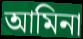
আমিনা